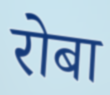
रोबा